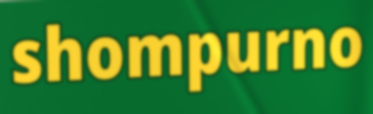
shompurno